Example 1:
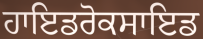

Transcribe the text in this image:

ਹਾਇਡਰੋਕਸਾਇਡ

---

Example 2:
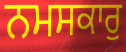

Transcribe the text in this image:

ਨਮਸਕਾਰੁ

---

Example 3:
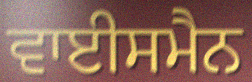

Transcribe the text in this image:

ਵਾਈਸਮੈਨ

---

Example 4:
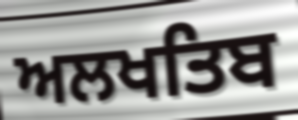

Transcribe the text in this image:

ਅਲਖਤਿਬ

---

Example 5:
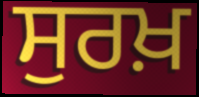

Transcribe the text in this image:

ਸੁਰਖ਼